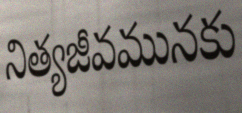
నిత్యజీవమునకు